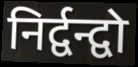
निर्द्वन्द्वो